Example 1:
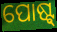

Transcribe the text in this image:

ପୋଷ୍ଟ୍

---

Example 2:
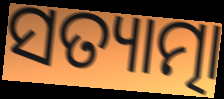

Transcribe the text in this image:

ସତ୍ୟାତ୍ମା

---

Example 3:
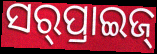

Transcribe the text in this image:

ସର୍‌ପ୍ରାଇଜ୍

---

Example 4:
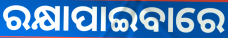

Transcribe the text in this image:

ରକ୍ଷାପାଇବାରେ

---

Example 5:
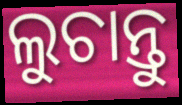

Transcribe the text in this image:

ଲୁଚାନ୍ତୁ